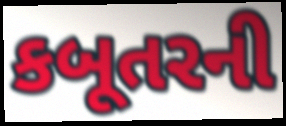
કબૂતરની